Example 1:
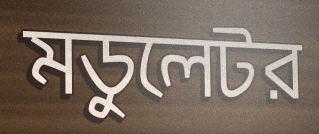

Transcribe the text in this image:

মডুলেটর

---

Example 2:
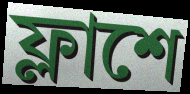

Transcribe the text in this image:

ফ্লাশে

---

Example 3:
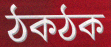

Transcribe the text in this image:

ঠকঠক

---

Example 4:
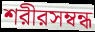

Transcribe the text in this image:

শরীরসম্বন্ধ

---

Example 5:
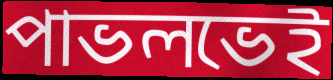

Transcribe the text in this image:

পাভলভেই